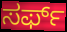
ಸರ್ಫ್